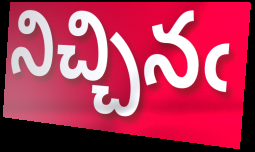
నిచ్చినఁ